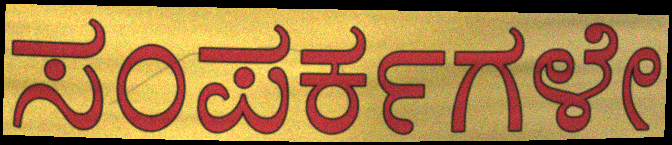
ಸಂಪರ್ಕಗಳೇ